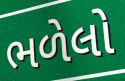
ભળેલો